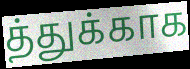
த்துக்காக